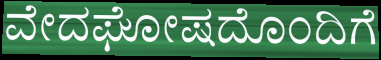
ವೇದಘೋಷದೊಂದಿಗೆ